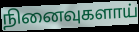
நினைவுகளாய்